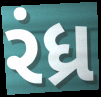
રંધ્ર